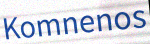
Komnenos